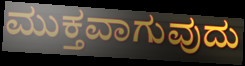
ಮುಕ್ತವಾಗುವುದು